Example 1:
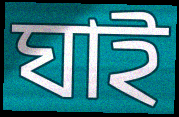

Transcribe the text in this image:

ঘাই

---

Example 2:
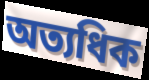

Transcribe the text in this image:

অত্যধিক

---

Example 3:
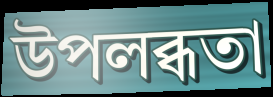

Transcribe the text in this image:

উপলব্ধতা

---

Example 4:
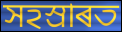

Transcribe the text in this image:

সহস্ৰাৰত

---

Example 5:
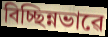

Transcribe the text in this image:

বিচ্ছিন্নভাৱে